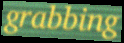
grabbing